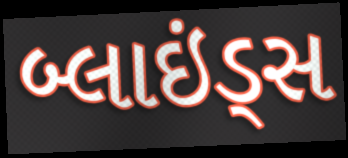
બ્લાઇંડ્સ